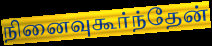
நினைவுகூர்ந்தேன்